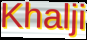
Khalji